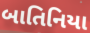
બાતિનિયા